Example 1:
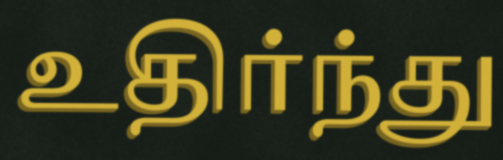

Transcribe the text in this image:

உதிர்ந்து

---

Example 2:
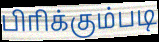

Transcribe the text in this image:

பிரிக்கும்படி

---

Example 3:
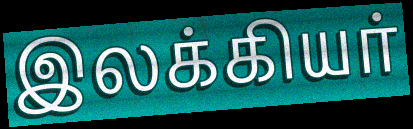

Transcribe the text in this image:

இலக்கியர்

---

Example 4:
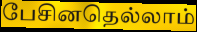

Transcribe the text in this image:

பேசினதெல்லாம்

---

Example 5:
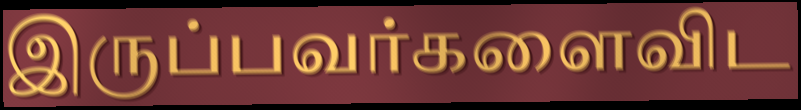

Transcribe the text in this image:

இருப்பவர்களைவிட